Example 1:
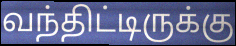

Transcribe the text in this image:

வந்திட்டிருக்கு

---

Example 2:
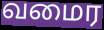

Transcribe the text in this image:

வமைர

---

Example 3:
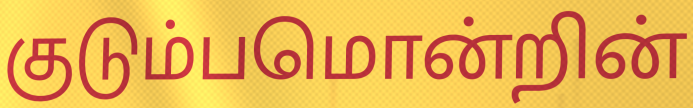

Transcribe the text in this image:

குடும்பமொன்றின்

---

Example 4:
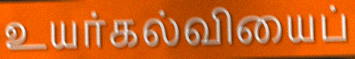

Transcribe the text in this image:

உயர்கல்வியைப்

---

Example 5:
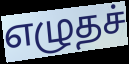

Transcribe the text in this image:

எழுதச்